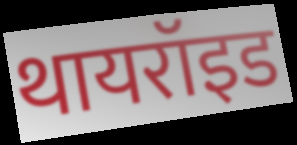
थायरॉइड